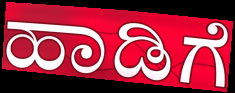
ಹಾಡಿಗೆ